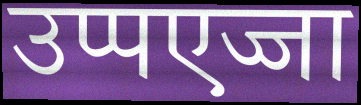
उप्पएज्जा